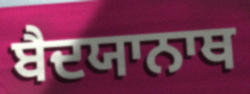
ਬੈਦਯਾਨਾਥ